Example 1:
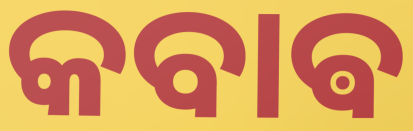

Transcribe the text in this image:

କବାଵ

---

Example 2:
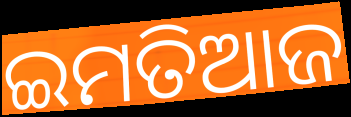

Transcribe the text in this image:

ଇମତିଆଜ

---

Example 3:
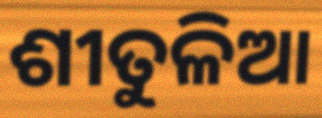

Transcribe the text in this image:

ଶୀତୁଳିଆ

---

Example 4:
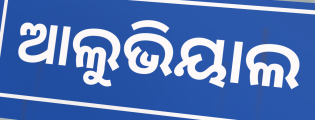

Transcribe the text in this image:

ଆଲୁଭିୟାଲ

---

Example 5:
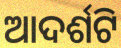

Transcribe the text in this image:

ଆଦର୍ଶଟି